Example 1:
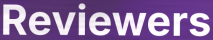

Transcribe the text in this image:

Reviewers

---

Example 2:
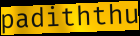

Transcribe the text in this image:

padiththu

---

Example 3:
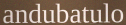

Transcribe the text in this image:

andubatulo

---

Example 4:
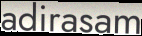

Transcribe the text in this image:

adirasam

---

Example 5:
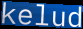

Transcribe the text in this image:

kelud